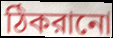
ঠিকরানো